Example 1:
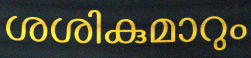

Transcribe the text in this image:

ശശികുമാറും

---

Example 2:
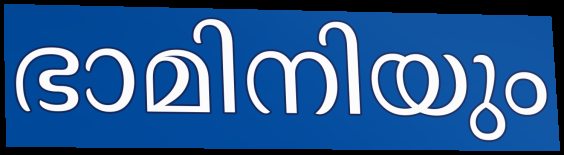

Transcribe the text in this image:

ഭാമിനിയും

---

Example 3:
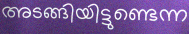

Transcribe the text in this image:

അടങ്ങിയിട്ടുണ്ടെന്ന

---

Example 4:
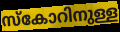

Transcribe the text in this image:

സ്കോറിനുള്ള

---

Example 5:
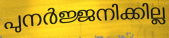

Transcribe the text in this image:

പുനർജ്ജനിക്കില്ല